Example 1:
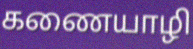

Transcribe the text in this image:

கணையாழி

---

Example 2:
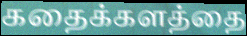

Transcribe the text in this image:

கதைக்களத்தை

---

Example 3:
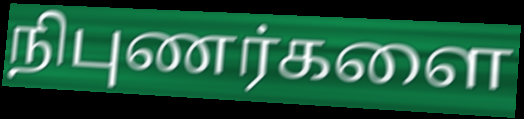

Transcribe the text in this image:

நிபுணர்களை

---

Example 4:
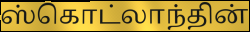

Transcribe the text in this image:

ஸ்கொட்லாந்தின்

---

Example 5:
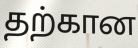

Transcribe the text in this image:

தற்கான